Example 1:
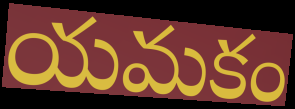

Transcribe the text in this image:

యమకం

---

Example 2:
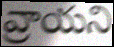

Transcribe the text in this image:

వ్రాయని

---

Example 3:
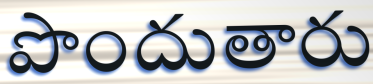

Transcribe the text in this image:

పొందుతారు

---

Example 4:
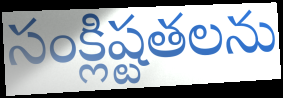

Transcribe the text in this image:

సంక్లిష్టతలను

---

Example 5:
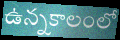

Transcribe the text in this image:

ఉన్నకాలంలో